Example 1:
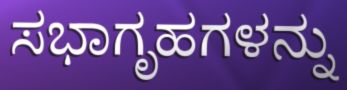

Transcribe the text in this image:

ಸಭಾಗೃಹಗಳನ್ನು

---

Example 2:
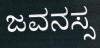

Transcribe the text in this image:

ಜವನಸ್ಸ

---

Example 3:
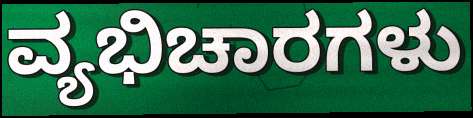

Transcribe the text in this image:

ವ್ಯಭಿಚಾರಗಳು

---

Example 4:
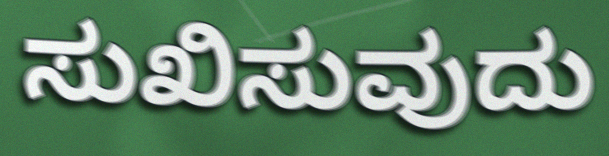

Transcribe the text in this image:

ಸುಖಿಸುವುದು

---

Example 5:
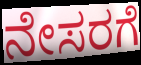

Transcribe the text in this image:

ನೇಸರಗೆ